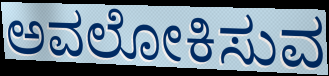
ಅವಲೋಕಿಸುವ